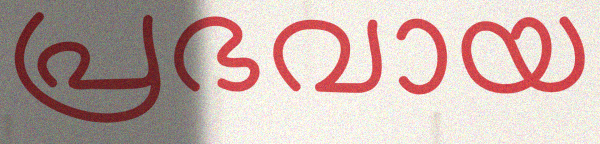
പ്രഭവായ